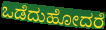
ಒಡೆದುಹೋದರೆ